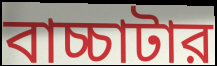
বাচ্চাটার